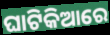
ଘାଟିକିଆରେ